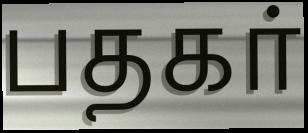
பதகர்